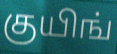
குயிங்